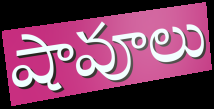
షావూలు